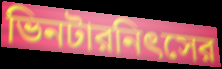
ভিনটারনিৎসের